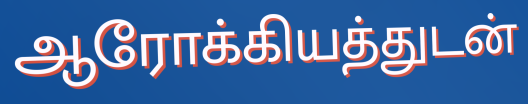
ஆரோக்கியத்துடன்